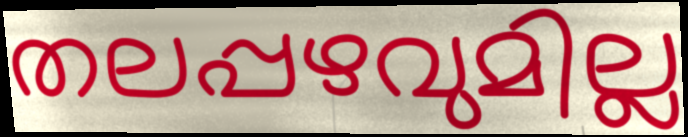
തലപ്പഴവുമില്ല